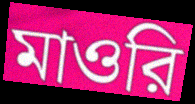
মাওরি